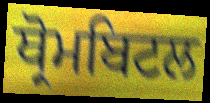
ਥ੍ਰੋਮਬਿਟਲ